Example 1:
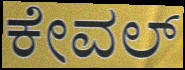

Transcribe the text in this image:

ಕೇವಲ್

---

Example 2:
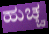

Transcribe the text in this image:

ಹುಚ್ಚ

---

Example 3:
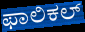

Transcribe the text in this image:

ಫಾಲಿಕಲ್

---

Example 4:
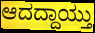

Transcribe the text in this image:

ಆದದ್ದಾಯ್ತು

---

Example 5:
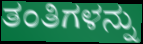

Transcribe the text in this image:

ತಂತಿಗಳನ್ನು